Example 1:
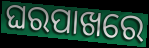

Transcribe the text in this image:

ଘରପାଖରେ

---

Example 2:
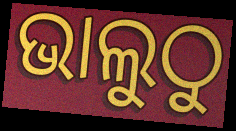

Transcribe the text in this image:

ଭାଲୁଠୁ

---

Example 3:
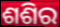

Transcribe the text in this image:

ଶଶିର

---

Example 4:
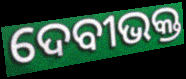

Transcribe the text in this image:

ଦେବୀଭକ୍ତ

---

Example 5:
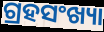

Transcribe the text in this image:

ଗ୍ରହସଂଖ୍ୟା